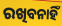
ରଖିବନାହିଁ